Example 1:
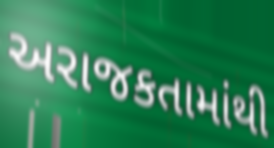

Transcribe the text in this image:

અરાજકતામાંથી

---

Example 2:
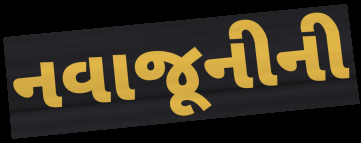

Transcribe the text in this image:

નવાજૂનીની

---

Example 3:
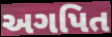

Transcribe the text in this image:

અગપિત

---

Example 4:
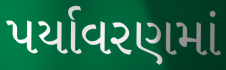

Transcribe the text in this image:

પર્યાવરણમાં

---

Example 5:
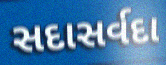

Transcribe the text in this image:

સદાસર્વદા